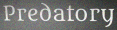
Predatory